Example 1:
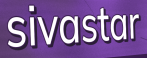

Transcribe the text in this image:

sivastar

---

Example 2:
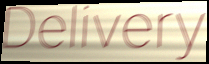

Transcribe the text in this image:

Delivery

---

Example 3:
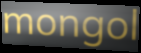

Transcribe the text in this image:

mongol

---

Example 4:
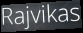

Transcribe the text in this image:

Rajvikas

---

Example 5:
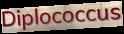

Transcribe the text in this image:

Diplococcus